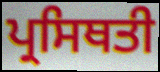
ਪ੍ਰਸਿਥਤੀ